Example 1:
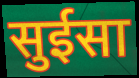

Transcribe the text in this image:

सुईसा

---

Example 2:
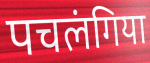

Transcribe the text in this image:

पचलंगिया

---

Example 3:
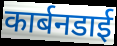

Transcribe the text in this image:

कार्बनडाई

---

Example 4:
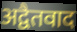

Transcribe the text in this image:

अद्वैतवाद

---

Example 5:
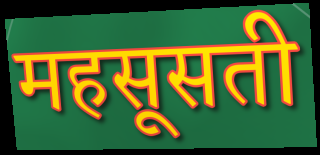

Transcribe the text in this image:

महसूसती